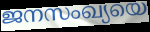
ജനസംഖ്യയെ